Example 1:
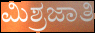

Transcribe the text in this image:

ಮಿಶ್ರಜಾತಿ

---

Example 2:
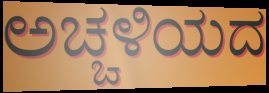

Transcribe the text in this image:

ಅಚ್ಚಳಿಯದ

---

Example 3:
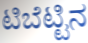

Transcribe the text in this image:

ಟಿಬೆಟ್ಟಿನ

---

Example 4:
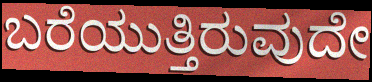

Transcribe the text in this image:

ಬರೆಯುತ್ತಿರುವುದೇ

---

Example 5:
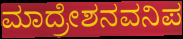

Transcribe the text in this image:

ಮಾದ್ರೇಶನವನಿಪ